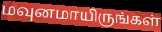
மவுனமாயிருங்கள்